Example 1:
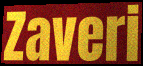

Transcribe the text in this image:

Zaveri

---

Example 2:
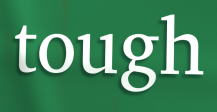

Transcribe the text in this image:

tough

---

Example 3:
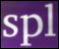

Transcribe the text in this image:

spl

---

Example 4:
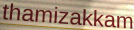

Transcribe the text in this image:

thamizakkam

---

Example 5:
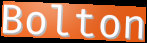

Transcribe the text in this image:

Bolton